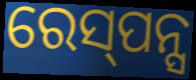
ରେସ୍‌ପନ୍ସ